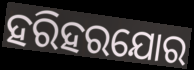
ହରିହରଯୋର